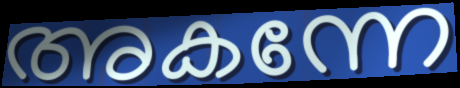
അകന്നേ